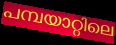
പമ്പയാറ്റിലെ